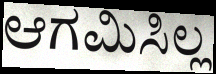
ಆಗಮಿಸಿಲ್ಲ